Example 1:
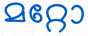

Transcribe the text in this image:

മറ്റോ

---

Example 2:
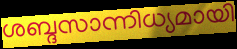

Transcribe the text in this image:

ശബ്ദസാന്നിധ്യമായി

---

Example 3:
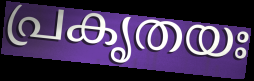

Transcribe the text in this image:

പ്രകൃതയഃ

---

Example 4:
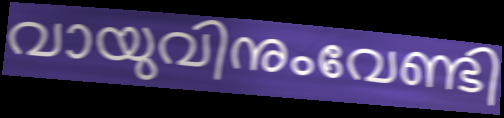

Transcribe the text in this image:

വായുവിനുംവേണ്ടി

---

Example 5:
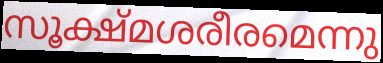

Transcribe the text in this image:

സൂക്ഷ്മശരീരമെന്നു